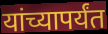
यांच्यापर्यंत